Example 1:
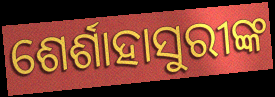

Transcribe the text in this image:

ଶେର୍ଶାହାସୁରୀଙ୍କ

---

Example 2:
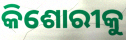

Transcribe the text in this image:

କିଶୋରୀକୁ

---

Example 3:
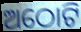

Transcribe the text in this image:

ଅଠୋଟି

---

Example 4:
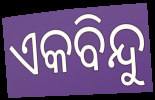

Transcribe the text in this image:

ଏକବିନ୍ଦୁ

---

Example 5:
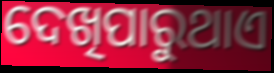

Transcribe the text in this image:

ଦେଖିପାରୁଥାଏ